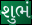
શુભં